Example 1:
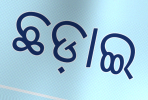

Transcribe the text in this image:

ଛଡ଼ାଇ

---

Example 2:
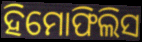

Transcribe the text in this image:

ହିମୋଫିଲିସ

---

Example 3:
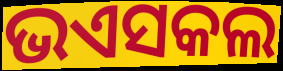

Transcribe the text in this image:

ଭଏସକଲ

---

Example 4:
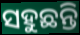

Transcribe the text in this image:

ସହୁଛନ୍ତି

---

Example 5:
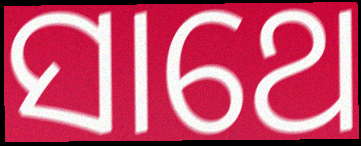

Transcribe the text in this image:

ସାଥେ